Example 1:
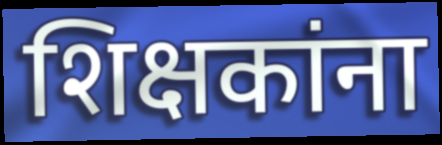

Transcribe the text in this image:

शिक्षकांना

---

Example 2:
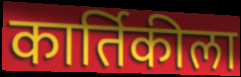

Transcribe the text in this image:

कार्तिकीला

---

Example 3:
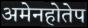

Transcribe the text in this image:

अमेनहोतेप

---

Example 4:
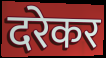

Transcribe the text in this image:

दरेकर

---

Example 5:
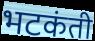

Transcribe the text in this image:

भटकंती